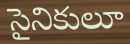
సైనికులూ